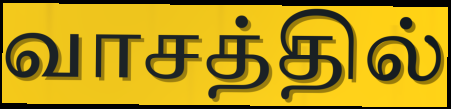
வாசத்தில்